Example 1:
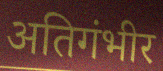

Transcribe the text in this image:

अतिगंभीर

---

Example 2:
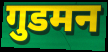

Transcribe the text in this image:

गुडमन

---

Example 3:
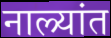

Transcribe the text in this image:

नाल्यांत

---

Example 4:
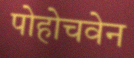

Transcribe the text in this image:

पोहोचवेन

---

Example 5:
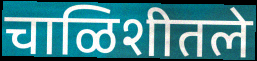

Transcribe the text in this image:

चाळिशीतले